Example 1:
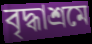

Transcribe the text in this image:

বৃদ্ধাশ্রমে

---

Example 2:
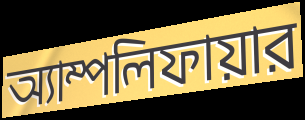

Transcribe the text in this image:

অ্যাম্পলিফায়ার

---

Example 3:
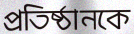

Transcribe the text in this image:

প্রতিষ্ঠানকে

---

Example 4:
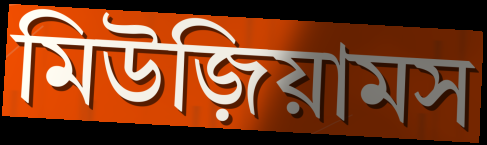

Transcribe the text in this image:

মিউজ়িয়ামস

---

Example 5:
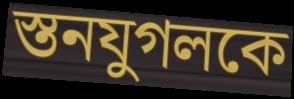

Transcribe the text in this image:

স্তনযুগলকে